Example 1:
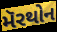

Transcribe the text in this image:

મૅરથોન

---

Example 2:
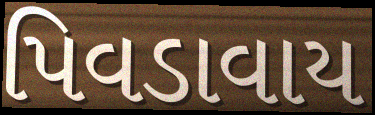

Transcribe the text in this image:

પિવડાવાય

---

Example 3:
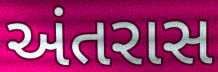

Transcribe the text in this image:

અંતરાસ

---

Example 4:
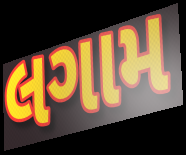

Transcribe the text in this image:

લગામ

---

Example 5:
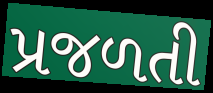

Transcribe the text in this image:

પ્રજળતી